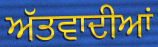
ਅੱਤਵਾਦੀਆਂ